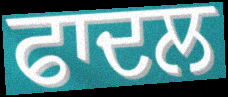
ਫਾਦਲ